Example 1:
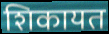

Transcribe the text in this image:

शिकायत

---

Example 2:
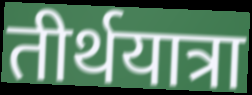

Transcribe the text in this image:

तीर्थयात्रा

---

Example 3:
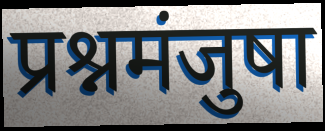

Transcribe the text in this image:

प्रश्नमंजुषा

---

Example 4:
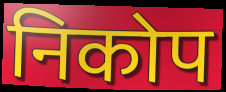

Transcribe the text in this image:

निकोप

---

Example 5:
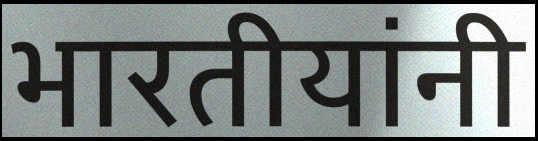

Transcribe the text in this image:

भारतीयांनी